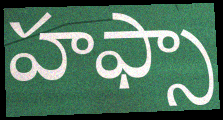
హఫ్సా